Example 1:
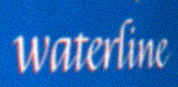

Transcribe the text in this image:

waterline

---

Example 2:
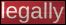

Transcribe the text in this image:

legally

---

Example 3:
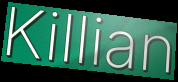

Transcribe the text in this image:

Killian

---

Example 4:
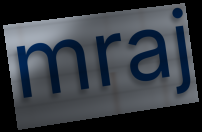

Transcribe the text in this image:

mraj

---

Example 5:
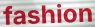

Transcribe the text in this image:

fashion